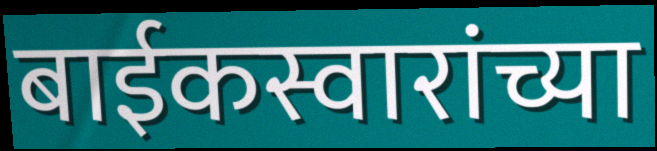
बाईकस्वारांच्या